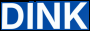
DINK